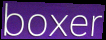
boxer